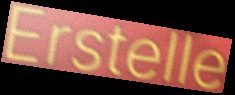
Erstelle